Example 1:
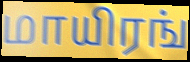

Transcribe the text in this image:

மாயிரங்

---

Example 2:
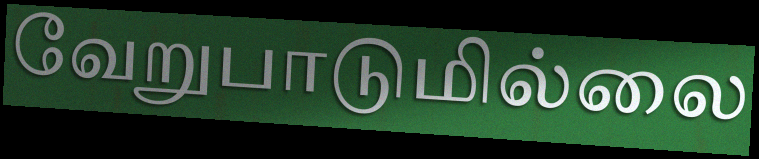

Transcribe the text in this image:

வேறுபாடுமில்லை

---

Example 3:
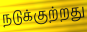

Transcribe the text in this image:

நடுக்குற்றது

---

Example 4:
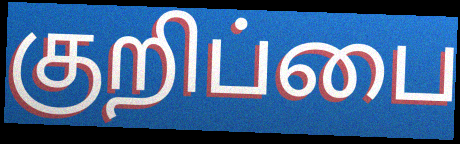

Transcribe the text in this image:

குறிப்பை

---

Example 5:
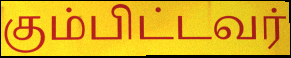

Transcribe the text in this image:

கும்பிட்டவர்